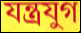
যন্ত্রযুগ